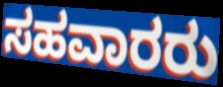
ಸಹವಾರರು